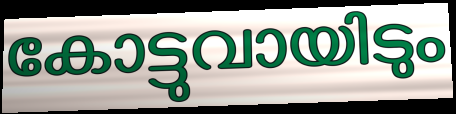
കോട്ടുവായിടും